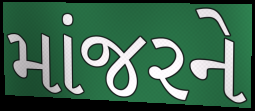
માંજરને